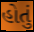
હોતું